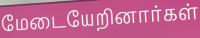
மேடையேறினார்கள்